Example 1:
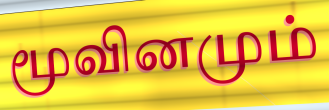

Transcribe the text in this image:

மூவினமும்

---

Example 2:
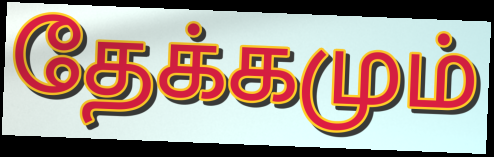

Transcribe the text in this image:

தேக்கமும்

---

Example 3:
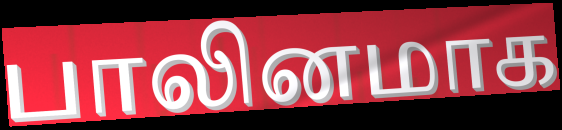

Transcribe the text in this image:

பாலினமாக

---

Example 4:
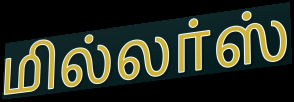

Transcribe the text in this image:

மில்லர்ஸ்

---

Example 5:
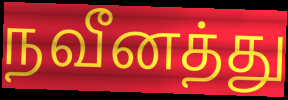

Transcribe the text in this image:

நவீனத்து